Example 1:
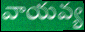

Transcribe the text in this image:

వాయవ్య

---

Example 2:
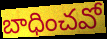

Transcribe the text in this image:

బాధించవో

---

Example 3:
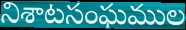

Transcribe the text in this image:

నిశాటసంఘముల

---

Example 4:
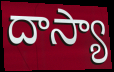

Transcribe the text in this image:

దాస్యా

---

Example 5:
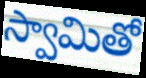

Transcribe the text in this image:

స్వామితో